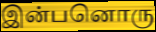
இன்பனொரு